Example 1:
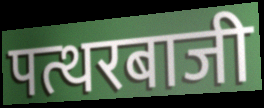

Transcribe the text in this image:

पत्थरबाजी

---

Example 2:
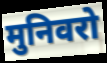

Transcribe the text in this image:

मुनिवरो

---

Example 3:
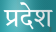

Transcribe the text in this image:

प्रदेश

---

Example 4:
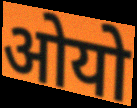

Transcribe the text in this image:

ओयो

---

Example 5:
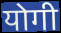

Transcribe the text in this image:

योगी